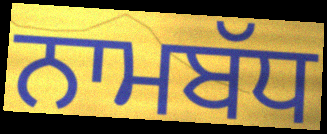
ਨਾਮਬੱਧ